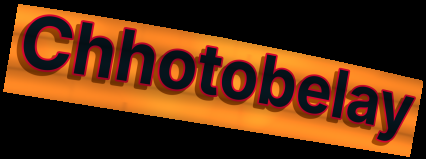
Chhotobelay